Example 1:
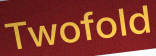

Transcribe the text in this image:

Twofold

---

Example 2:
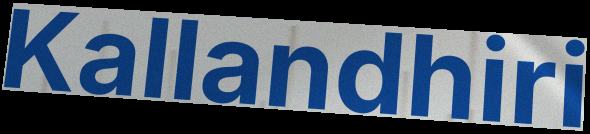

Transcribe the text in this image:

Kallandhiri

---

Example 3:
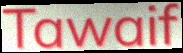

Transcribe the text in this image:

Tawaif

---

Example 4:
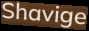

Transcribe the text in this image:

Shavige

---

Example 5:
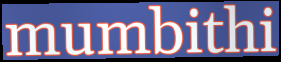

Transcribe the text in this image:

mumbithi